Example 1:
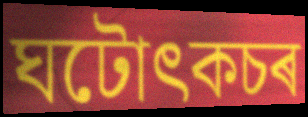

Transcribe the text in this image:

ঘটোৎকচৰ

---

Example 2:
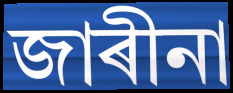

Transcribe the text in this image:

জাৰীনা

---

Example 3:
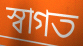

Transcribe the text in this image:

স্বাগত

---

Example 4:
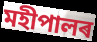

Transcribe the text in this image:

মহীপালৰ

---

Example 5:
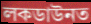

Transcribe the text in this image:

লকডাউনত